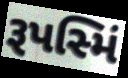
રૂપસ્મિં